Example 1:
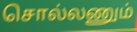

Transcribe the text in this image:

சொல்லணும்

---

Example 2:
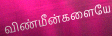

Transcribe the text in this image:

விண்மீன்களையே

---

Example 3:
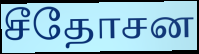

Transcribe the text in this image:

சீதோசன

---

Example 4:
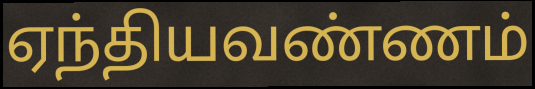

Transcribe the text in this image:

ஏந்தியவண்ணம்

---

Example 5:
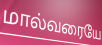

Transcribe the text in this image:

மால்வரையே